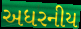
અધરનીય